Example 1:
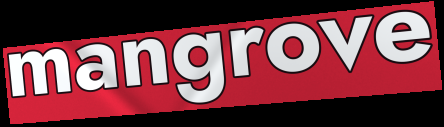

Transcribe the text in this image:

mangrove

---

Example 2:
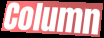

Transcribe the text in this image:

Column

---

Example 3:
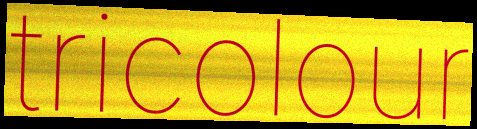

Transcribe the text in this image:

tricolour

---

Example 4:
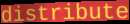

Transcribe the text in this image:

distribute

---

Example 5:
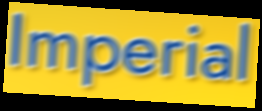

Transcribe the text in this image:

Imperial